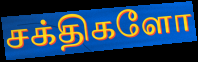
சக்திகளோ